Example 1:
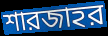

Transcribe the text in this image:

শারজাহর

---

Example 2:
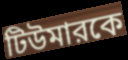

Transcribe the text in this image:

টিউমারকে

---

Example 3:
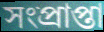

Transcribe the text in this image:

সংপ্রাপ্তা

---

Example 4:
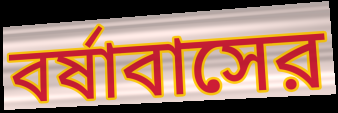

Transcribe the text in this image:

বর্ষাবাসের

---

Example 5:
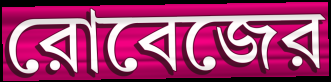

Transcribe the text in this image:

রোবেজের